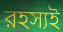
রহস্যই